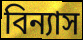
বিন্যাস